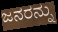
ಜನರನ್ನು